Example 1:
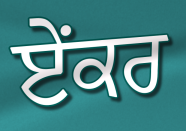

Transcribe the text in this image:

ਏੰਕਰ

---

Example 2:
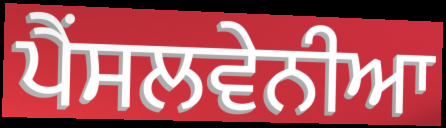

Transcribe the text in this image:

ਪੈਂਸਲਵੇਨੀਆ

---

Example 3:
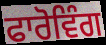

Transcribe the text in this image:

ਫਾਰੋਵਿੰਗ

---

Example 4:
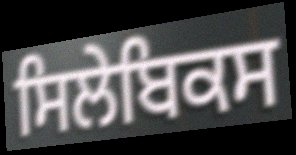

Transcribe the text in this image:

ਸਿਲੇਬਿਕਸ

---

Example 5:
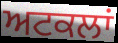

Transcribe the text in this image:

ਅਟਕਲਾਂ